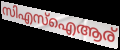
സിഎസ്ഐആര്